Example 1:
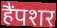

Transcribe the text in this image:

हैंपशर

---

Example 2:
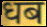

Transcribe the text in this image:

धब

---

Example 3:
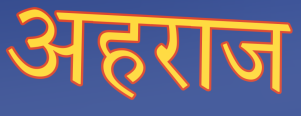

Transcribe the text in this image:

अहराज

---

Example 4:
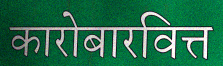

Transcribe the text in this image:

कारोबारवित्त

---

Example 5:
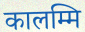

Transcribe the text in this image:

कालम्मि